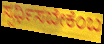
ಸ್ಪರ್ಧಿಸಬೇಕೆಂಬ